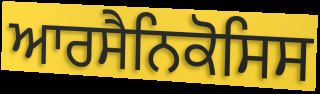
ਆਰਸੈਨਿਕੋਸਿਸ